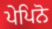
ਪੇਪਿਨੋ